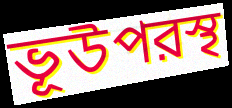
ভূউপরস্থ